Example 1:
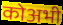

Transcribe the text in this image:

कोअभी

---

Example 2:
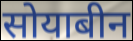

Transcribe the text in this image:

सोयाबीन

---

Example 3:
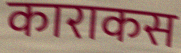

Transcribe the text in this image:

काराकस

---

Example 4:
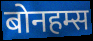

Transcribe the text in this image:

बोनहम्स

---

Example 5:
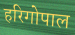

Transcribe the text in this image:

हरिगोपाल